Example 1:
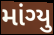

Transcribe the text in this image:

માંગ્યુ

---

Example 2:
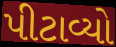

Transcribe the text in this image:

પીટાવ્યો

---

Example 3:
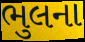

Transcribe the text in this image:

ભુલના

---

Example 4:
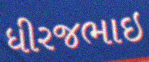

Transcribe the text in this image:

ધીરજભાઇ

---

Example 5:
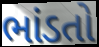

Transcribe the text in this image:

ભાંડતો